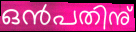
ഒൻപതിനു്